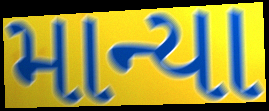
માન્યા